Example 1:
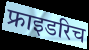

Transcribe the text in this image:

फ्राइडरिच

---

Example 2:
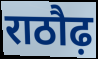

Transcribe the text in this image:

राठौढ़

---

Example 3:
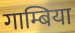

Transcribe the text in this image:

गाम्बिया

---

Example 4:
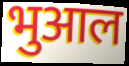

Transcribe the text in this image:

भुआल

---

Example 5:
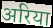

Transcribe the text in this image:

अरिया